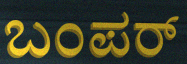
ಬಂಪರ್